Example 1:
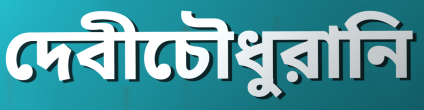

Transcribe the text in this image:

দেবীচৌধুরানি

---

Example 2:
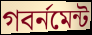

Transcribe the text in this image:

গবর্নমেন্ট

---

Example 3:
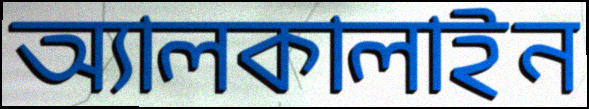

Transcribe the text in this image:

অ্যালকালাইন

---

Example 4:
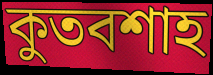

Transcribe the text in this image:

কুতবশাহ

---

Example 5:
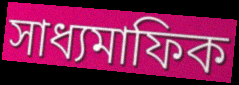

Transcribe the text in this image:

সাধ্যমাফিক